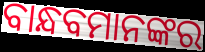
ବାନ୍ଧବମାନଙ୍କର